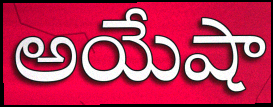
అయేషా